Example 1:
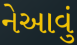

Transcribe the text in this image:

નેઆવું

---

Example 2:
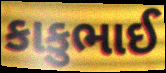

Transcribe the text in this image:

કાકુભાઈ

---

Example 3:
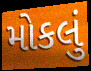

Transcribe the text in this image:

મોકલું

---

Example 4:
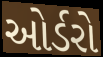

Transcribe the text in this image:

ઓર્ડરો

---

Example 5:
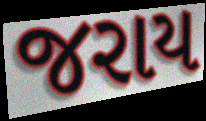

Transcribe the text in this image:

જરાય